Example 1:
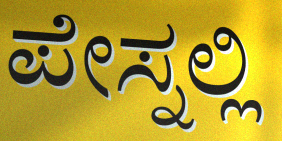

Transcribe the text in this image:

ಪೇಸ್ನಲ್ಲಿ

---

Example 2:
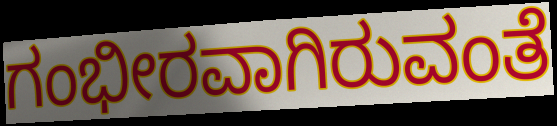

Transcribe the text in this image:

ಗಂಭೀರವಾಗಿರುವಂತೆ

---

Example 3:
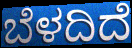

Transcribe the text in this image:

ಬೆಳದಿದೆ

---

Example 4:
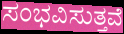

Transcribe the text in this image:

ಸಂಭವಿಸುತ್ತವೆ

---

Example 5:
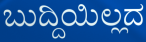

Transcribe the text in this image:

ಬುದ್ದಿಯಿಲ್ಲದ